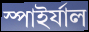
স্পাইর্যাল